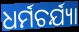
ଧର୍ମଚର୍ଯ୍ୟା